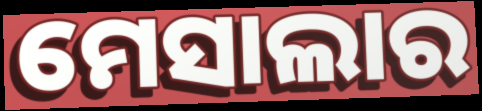
ମେସାଲାର